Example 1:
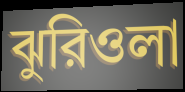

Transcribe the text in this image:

ঝুরিওলা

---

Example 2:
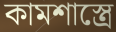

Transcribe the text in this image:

কামশাস্ত্রে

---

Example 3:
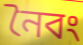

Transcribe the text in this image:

নৈবং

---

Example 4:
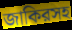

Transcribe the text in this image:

জাকিরসহ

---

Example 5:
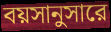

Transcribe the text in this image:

বয়সানুসারে